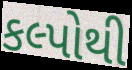
કલ્પોથી